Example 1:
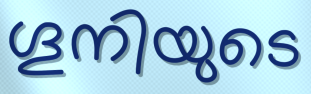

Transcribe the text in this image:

ഗൂനിയുടെ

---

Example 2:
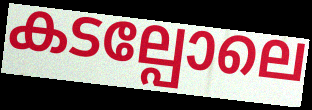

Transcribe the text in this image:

കടല്പോലെ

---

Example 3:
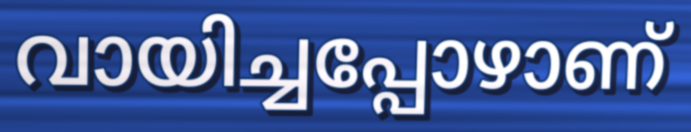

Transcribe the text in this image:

വായിച്ചപ്പോഴാണ്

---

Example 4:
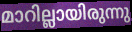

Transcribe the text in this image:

മാറില്ലായിരുന്നു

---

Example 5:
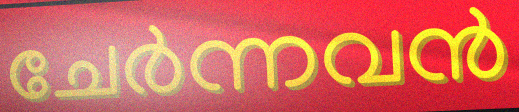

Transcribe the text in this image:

ചേർന്നവൻ